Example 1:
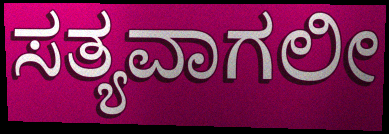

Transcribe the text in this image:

ಸತ್ಯವಾಗಲೀ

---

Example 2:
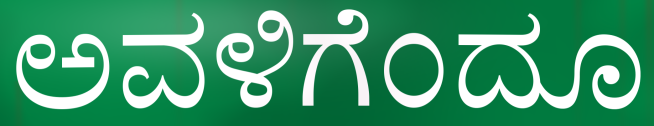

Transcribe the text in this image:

ಅವಳಿಗೆಂದೂ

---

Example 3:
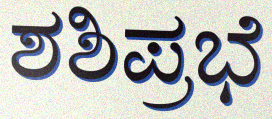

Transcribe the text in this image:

ಶಶಿಪ್ರಭೆ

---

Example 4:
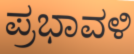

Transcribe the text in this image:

ಪ್ರಭಾವಳಿ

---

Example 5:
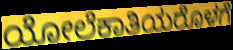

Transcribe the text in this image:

ಯೋಲೆಕಾತಿಯರೊಳಗೆ